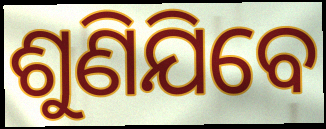
ଶୁଣିଯିବେ